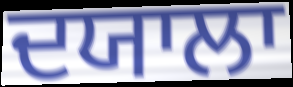
ਦਯਾਲਾ